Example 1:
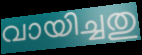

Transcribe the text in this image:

വായിച്ചതു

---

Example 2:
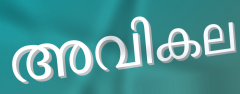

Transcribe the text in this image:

അവികല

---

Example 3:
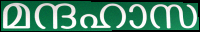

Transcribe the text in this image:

മന്ദഹാസ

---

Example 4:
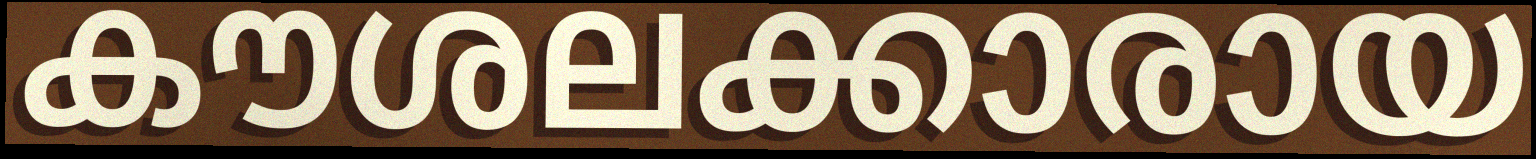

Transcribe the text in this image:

കൗശലക്കാരായ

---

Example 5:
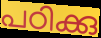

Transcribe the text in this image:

പഠിക്കു